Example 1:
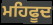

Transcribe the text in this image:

ਮਹਿਫੂਦ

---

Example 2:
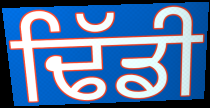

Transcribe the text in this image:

ਢਿੱਡੀ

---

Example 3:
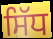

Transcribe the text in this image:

ਸਿੱਧ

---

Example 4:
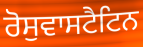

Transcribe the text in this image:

ਰੋਸੁਵਾਸਟੈਟਿਨ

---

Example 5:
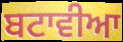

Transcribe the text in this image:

ਬਟਾਵੀਆ